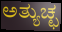
ಅತ್ಯುಚ್ಛ